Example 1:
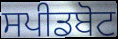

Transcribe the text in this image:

ਸਪੀਡਬੋਟ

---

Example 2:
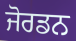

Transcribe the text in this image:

ਜੋਰਡਨ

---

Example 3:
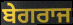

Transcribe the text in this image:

ਬੇਗਰਾਜ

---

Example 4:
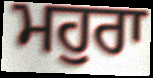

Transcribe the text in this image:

ਮਹੁਰਾ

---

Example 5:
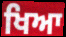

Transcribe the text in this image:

ਖਿਆ